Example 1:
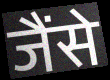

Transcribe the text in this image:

जैंसे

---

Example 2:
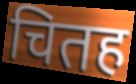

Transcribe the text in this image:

चितह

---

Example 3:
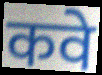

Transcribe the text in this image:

कवे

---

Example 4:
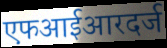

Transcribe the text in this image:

एफआईआरदर्ज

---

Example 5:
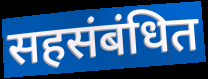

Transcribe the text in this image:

सहसंबंधित